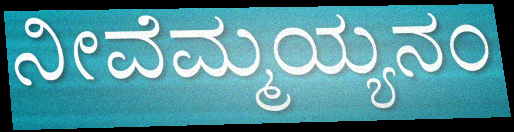
ನೀವೆಮ್ಮಯ್ಯನಂ